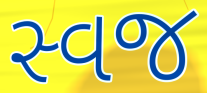
સ્વજ